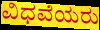
ವಿಧವೆಯರು